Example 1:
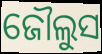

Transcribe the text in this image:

ଜୌଲୁସ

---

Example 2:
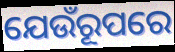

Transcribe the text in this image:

ଯେଉଁରୂପରେ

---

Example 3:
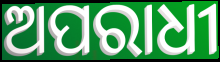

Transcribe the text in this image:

ଅପରାଧୀ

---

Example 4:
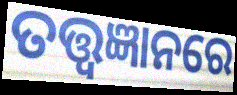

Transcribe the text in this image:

ତତ୍ତ୍ୱଜ୍ଞାନରେ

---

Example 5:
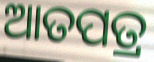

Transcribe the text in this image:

ଆତପତ୍ର